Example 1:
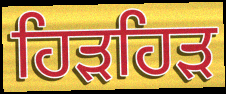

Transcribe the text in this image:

ਹਿੜਹਿੜ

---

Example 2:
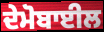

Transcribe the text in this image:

ਦੇਮੋਬਾਈਲ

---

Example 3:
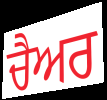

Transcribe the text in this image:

ਚੈਅਰ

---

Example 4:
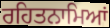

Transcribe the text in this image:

ਰਹਿਤਨਾਮਿਆਂ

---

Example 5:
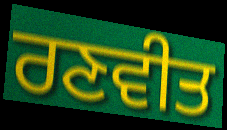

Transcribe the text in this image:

ਰਣਵੀਤ